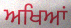
ਅਖਿਆਂ